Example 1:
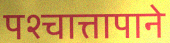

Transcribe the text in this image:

पश्चात्तापाने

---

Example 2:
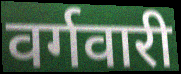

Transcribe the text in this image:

वर्गवारी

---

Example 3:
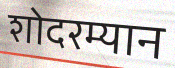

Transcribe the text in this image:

शोदरम्यान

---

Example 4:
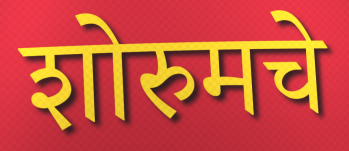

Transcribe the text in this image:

शोरुमचे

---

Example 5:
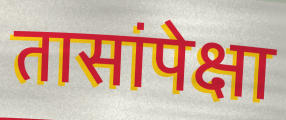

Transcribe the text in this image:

तासांपेक्षा